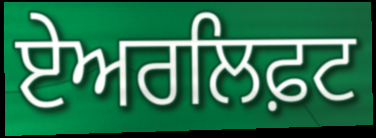
ਏਅਰਲਿਫ਼ਟ